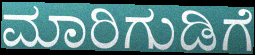
ಮಾರಿಗುಡಿಗೆ